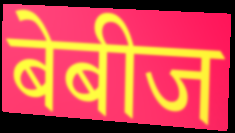
बेबीज